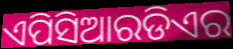
ଏପିସିଆରଡିଏର